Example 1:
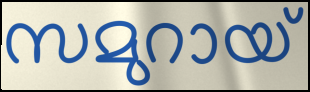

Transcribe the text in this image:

സമുറായ്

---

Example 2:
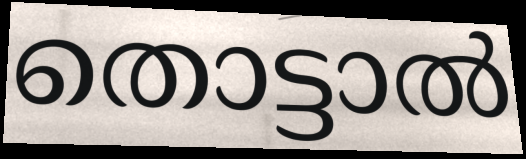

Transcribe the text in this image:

തൊട്ടാൽ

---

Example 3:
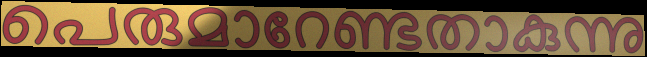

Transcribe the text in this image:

പെരുമാറേണ്ടതാകുന്നു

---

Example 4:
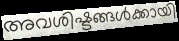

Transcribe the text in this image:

അവശിഷ്ടങ്ങൾക്കായി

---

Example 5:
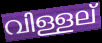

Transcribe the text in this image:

വിള്ളല്